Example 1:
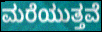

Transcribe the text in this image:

ಮರೆಯುತ್ತವೆ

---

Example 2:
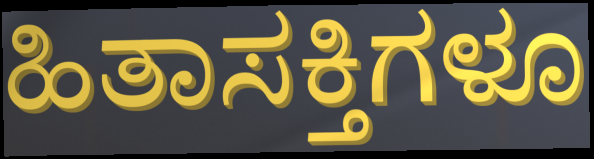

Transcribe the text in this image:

ಹಿತಾಸಕ್ತಿಗಳೂ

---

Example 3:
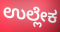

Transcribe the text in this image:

ಉಲ್ಲೇಕ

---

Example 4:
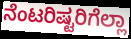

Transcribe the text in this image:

ನೆಂಟರಿಷ್ಟರಿಗೆಲ್ಲಾ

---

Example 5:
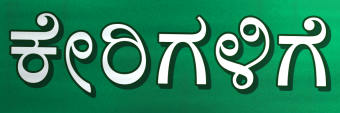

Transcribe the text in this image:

ಕೇರಿಗಳಿಗೆ